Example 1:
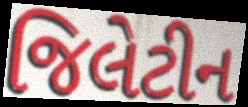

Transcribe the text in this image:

જિલેટીન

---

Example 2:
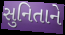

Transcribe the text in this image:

સુનિતાને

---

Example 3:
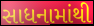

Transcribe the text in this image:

સાધનામાંથી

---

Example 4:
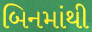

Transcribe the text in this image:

બિનમાંથી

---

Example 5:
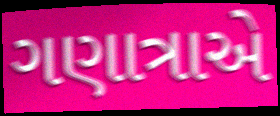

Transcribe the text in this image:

ગણાત્રાએ